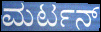
ಮರ್ಟನ್